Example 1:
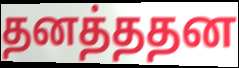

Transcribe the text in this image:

தனத்ததன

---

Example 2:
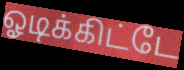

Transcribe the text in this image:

ஓடிக்கிட்டே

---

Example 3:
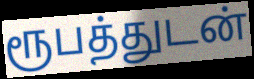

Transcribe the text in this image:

ரூபத்துடன்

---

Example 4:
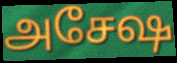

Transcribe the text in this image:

அசேஷ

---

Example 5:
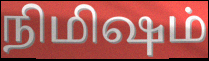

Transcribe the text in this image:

நிமிஷம்